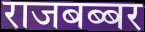
राजबब्बर